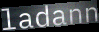
ladann